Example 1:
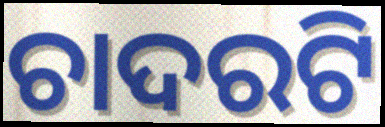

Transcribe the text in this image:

ଚାଦରଟି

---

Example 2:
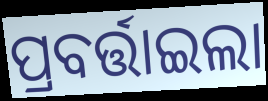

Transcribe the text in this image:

ପ୍ରବର୍ତ୍ତାଇଲା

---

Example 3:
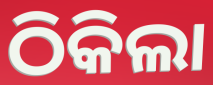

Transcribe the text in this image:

ଠିକିଲା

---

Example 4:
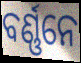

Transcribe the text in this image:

ବର୍ଣ୍ଣନେ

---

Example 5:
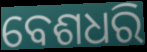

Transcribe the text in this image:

ବେଶଧରି